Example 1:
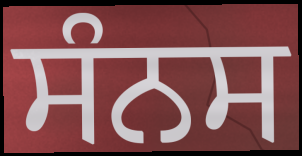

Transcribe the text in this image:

ਸੰਨਸ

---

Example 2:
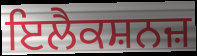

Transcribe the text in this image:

ਇਲੈਕਸ਼ਨਜ਼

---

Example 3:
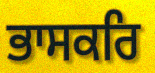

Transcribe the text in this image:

ਭਾਸਕਰਿ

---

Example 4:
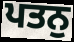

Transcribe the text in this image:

ਪਤਨੁ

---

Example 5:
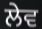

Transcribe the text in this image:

ਲੇਵ